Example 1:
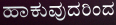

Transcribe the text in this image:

ಹಾಕುವುದರಿಂದ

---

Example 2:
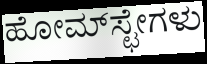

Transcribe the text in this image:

ಹೋಮ್‌ಸ್ಟೇಗಳು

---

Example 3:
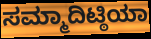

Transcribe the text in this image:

ಸಮ್ಮಾದಿಟ್ಠಿಯಾ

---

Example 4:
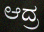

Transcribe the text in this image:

ಆದ್ರ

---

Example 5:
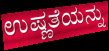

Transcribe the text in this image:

ಉಷ್ಣತೆಯನ್ನು